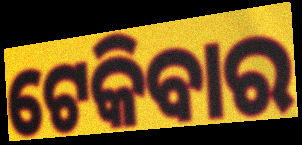
ଟେକିବାର